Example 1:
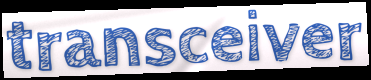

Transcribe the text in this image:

transceiver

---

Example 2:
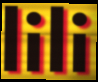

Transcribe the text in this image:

lili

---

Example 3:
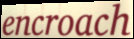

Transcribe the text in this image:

encroach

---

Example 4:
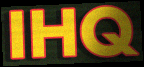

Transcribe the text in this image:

IHQ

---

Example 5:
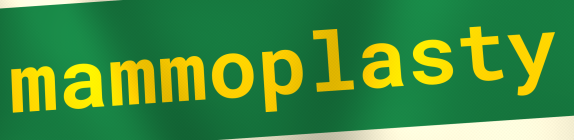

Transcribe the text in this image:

mammoplasty